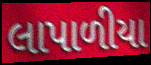
લાપાળીયા